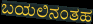
ಬಯಲಿನಂತಹ